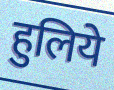
हुलिये